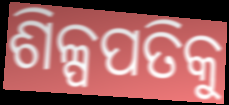
ଶିଳ୍ପପତିକୁ